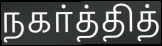
நகர்த்தித்